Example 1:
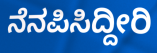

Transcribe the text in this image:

ನೆನಪಿಸಿದ್ದೀರಿ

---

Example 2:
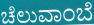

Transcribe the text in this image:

ಚೆಲುವಾಂಬೆ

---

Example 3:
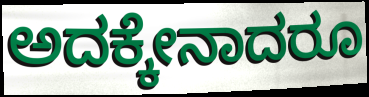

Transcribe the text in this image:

ಅದಕ್ಕೇನಾದರೂ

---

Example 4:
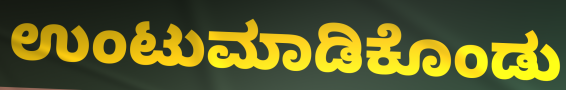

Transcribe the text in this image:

ಉಂಟುಮಾಡಿಕೊಂಡು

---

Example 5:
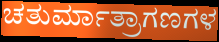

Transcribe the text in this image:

ಚತುರ್ಮಾತ್ರಾಗಣಗಳ